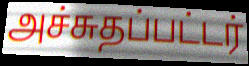
அச்சுதப்பட்டர்